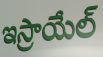
ఇస్రాయేల్